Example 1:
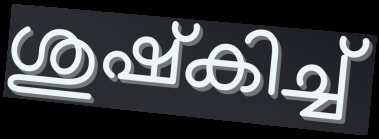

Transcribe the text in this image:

ശുഷ്കിച്ച്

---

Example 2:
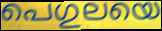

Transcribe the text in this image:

പെഗുലയെ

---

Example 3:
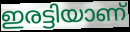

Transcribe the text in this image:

ഇരട്ടിയാണ്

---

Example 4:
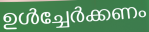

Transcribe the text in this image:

ഉൾച്ചേർക്കണം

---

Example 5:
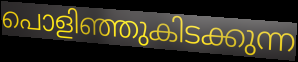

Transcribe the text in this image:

പൊളിഞ്ഞുകിടക്കുന്ന